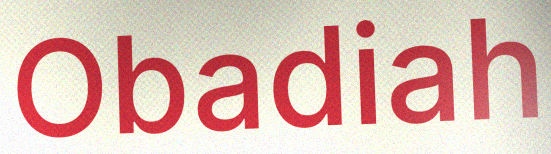
Obadiah